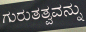
ಗುರುತತ್ವವನ್ನು